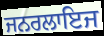
ਜਨਰਲਾਇਜ